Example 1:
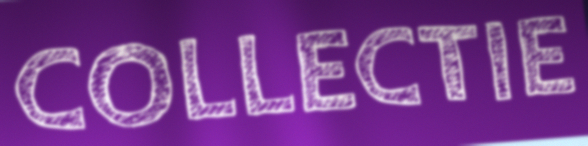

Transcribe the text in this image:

COLLECTIE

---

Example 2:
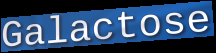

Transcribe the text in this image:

Galactose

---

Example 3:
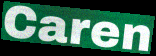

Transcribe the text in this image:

Caren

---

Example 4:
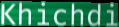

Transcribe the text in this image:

Khichdi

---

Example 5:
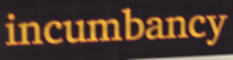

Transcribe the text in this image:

incumbancy